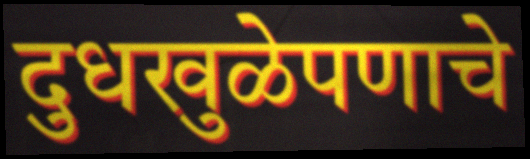
दुधखुळेपणाचे